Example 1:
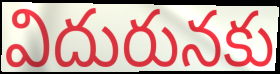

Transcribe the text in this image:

విదురునకు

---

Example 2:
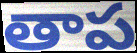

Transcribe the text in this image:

తాప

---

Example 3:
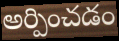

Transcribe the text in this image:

అర్పించడం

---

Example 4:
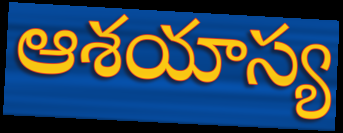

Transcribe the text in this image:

ఆశయాస్య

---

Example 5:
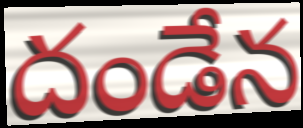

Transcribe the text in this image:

దండేన